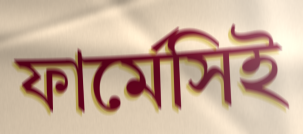
ফার্মেসিই